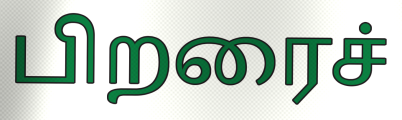
பிறரைச்